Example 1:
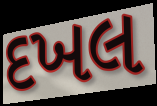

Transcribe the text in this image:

દખલ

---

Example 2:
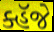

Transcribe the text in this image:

ક્હૅજે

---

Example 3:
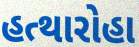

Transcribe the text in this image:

હત્થારોહા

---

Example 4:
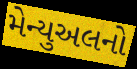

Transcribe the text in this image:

મેન્યુઅલનો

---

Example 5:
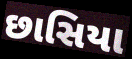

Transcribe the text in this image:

છાસિયા